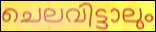
ചെലവിട്ടാലും